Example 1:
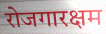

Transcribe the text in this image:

रोजगारक्षम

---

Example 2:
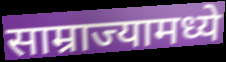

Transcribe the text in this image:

साम्राज्यामध्ये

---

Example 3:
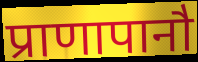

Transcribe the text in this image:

प्राणापानौ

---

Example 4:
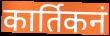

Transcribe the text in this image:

कार्तिकनं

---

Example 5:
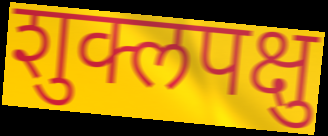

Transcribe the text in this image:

शुक्लपक्षु